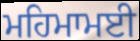
ਮਹਿਮਾਮਈ